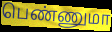
பெண்ணுமா